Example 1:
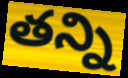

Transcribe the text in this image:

తన్ని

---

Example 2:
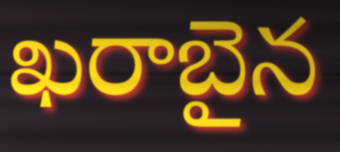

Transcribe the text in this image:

ఖరాబైన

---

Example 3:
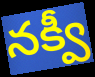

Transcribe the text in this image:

నక్వీ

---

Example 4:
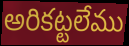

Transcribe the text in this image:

అరికట్టలేము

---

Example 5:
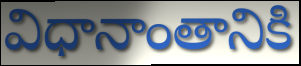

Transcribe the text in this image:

విధానాంతానికి